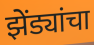
झेंड्यांचा